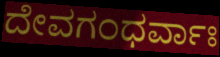
ದೇವಗಂಧರ್ವಾಃ